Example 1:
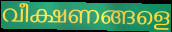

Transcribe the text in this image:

വീക്ഷണങ്ങളെ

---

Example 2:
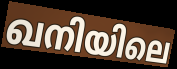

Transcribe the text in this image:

ഖനിയിലെ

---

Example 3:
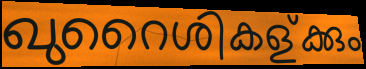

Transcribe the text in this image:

ഖുറൈശികള്ക്കും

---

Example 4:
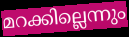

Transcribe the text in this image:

മറക്കില്ലെന്നും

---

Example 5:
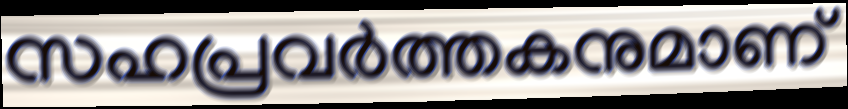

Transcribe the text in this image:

സഹപ്രവർത്തകനുമാണ്